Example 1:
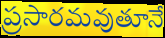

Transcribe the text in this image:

ప్రసారమవుతూనే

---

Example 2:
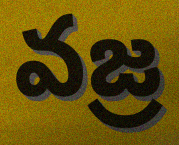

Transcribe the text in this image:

వజ్ర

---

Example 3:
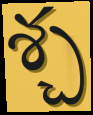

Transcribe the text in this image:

శ్చ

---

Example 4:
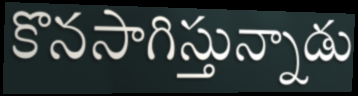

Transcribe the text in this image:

కొనసాగిస్తున్నాడు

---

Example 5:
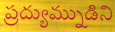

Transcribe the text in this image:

ప్రద్యుమ్నుడిని